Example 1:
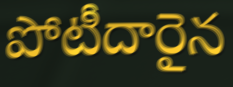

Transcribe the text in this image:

పోటీదారైన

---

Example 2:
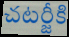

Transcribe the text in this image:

చటర్జీకి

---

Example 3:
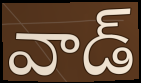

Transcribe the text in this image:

వాడ్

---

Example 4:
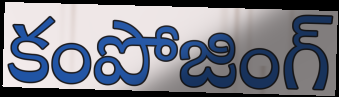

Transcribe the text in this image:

కంపోజింగ్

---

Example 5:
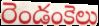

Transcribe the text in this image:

రెండంకెలు